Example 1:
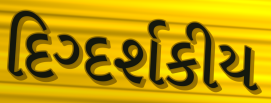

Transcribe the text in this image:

દિગ્દર્શકીય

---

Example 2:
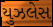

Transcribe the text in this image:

યુઝલેસ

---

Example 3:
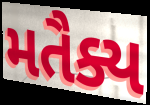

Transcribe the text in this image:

મતૈક્ય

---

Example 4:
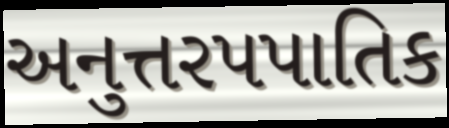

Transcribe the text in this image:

અનુત્તરપપાતિક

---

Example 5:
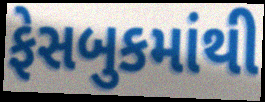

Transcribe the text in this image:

ફેસબુકમાંથી